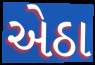
એઠા